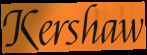
Kershaw